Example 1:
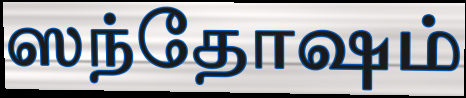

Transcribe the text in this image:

ஸந்தோஷம்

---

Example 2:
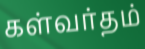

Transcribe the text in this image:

கள்வர்தம்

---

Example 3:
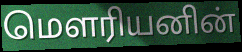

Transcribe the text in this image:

மௌரியனின்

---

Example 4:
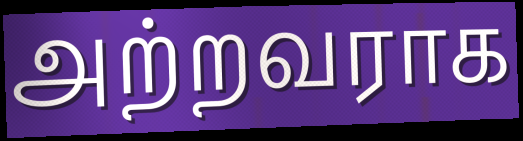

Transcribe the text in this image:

அற்றவராக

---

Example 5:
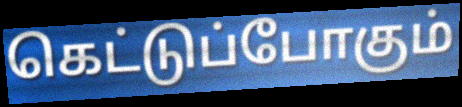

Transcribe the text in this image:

கெட்டுப்போகும்